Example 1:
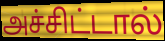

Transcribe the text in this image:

அச்சிட்டால்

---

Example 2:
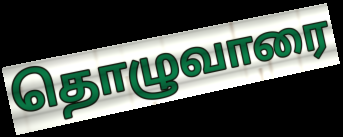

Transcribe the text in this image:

தொழுவாரை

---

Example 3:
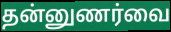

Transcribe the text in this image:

தன்னுணர்வை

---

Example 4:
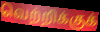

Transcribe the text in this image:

வெற்றிக்குக்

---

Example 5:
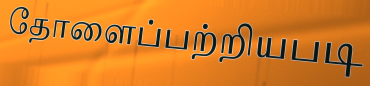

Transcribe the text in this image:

தோளைப்பற்றியபடி